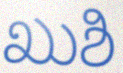
ಖುಶಿ